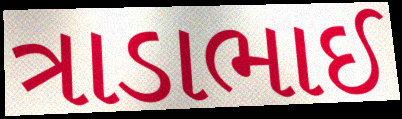
ત્રાડાભાઈ